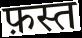
फ़स्त